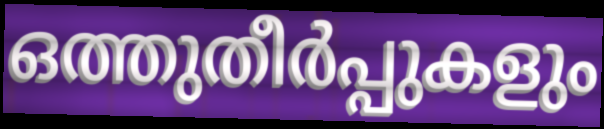
ഒത്തുതീർപ്പുകളും